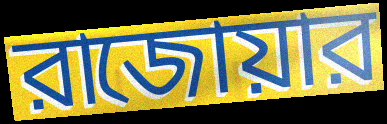
রাজোয়ার